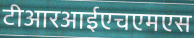
टीआरआईएचएमएस